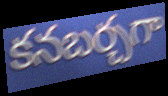
కనబర్చగా